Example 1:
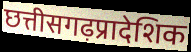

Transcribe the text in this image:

छत्तीसगढ़प्रादेशिक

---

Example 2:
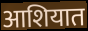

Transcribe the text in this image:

आशियात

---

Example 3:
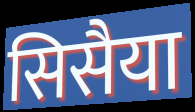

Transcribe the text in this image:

सिसैया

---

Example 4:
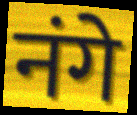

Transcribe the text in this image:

नंगे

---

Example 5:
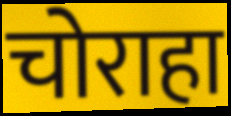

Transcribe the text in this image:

चोराहा